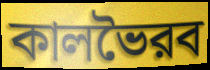
কালভৈরব